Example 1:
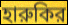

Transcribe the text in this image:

হারুকির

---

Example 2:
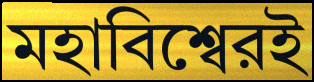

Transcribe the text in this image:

মহাবিশ্বেরই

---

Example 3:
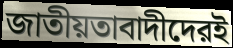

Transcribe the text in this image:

জাতীয়তাবাদীদেরই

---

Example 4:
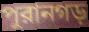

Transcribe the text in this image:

পুরানগড়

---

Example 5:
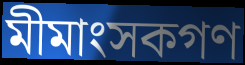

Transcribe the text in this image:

মীমাংসকগণ